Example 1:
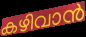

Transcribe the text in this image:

കഴിവാൻ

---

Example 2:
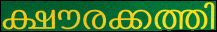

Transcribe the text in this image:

ക്ഷൗരക്കത്തി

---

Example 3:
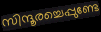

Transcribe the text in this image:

സിന്ദൂരച്ചെപ്പുണ്ടേ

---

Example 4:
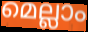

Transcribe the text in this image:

മെല്ലാം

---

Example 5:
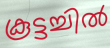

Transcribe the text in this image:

കൂട്ടച്ചിൽ